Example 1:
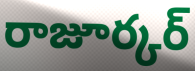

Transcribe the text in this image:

రాజూర్కర్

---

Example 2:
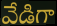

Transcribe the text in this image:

వేడిగా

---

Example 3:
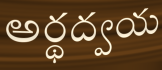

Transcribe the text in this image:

అర్థద్వయ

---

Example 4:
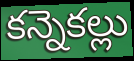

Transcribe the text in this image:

కన్నెకల్లు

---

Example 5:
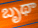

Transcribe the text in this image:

బృథా